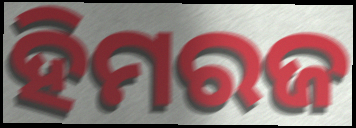
ହିମରଜ